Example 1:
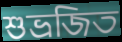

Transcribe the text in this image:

শুভ্রজিত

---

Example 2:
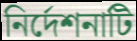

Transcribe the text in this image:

নির্দেশনাটি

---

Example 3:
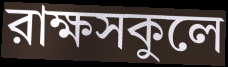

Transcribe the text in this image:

রাক্ষসকুলে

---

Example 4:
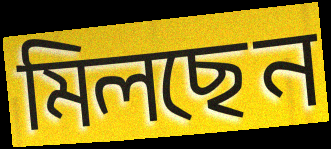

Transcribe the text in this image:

মিলছেন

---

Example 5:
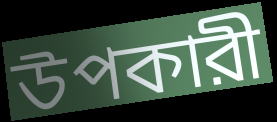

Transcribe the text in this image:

উপকারী